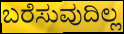
ಬರೆಸುವುದಿಲ್ಲ